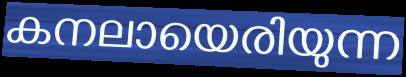
കനലായെരിയുന്ന